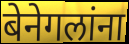
बेनेगलांना